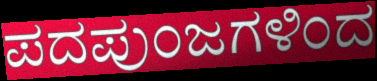
ಪದಪುಂಜಗಳಿಂದ